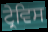
ਟ੍ਰੇਵਿਸ